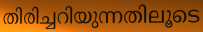
തിരിച്ചറിയുന്നതിലൂടെ